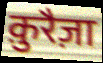
क़ुरैज़ा